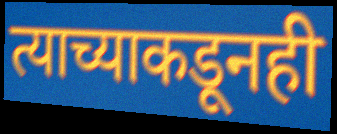
त्याच्याकडूनही